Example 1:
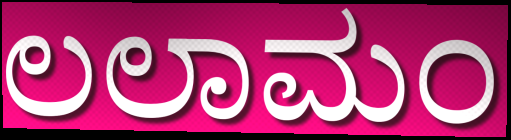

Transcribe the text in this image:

ಲಲಾಮಂ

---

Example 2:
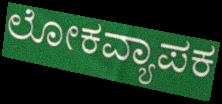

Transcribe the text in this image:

ಲೋಕವ್ಯಾಪಕ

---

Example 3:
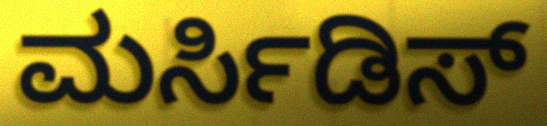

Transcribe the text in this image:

ಮರ್ಸಿಡಿಸ್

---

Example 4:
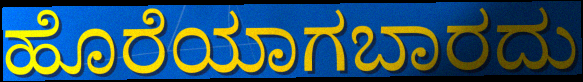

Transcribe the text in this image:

ಹೊರೆಯಾಗಬಾರದು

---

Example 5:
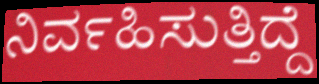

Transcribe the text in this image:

ನಿರ್ವಹಿಸುತ್ತಿದ್ದೆ